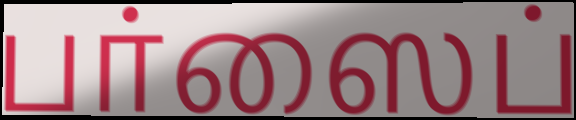
பர்ஸைப்